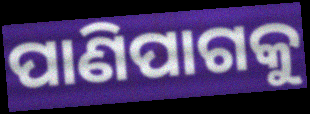
ପାଣିପାଗକୁ